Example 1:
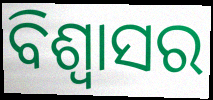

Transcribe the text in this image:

ବିଶ୍ବାସର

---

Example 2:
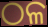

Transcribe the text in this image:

ଠଳ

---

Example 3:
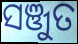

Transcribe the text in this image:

ସଞ୍ଜୁତ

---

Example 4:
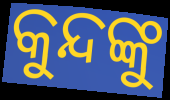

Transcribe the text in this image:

କୁନ୍ଦଙ୍କୁ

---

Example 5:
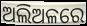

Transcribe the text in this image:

ଅଲିଅଳରେ